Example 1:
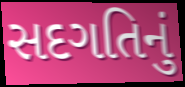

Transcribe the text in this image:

સદગતિનું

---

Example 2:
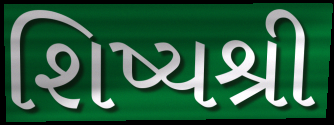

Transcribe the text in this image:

શિષ્યશ્રી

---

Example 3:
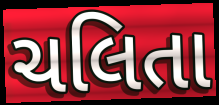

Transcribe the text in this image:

ચલિતા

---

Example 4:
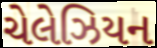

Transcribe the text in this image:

ચેલેઝિયન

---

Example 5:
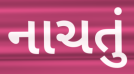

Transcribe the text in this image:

નાચતું